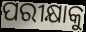
ପରୀକ୍ଷାକୁ